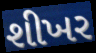
શીખર